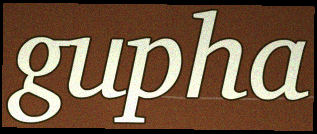
gupha